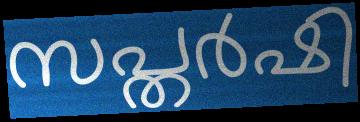
സപ്തർഷി